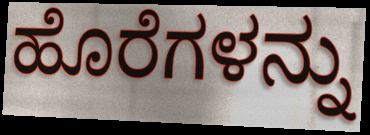
ಹೊರೆಗಳನ್ನು